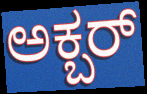
ಅಕ್ಬರ್